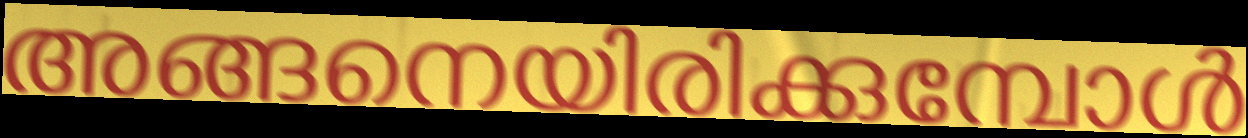
അങ്ങനെയിരിക്കുമ്പോൾ